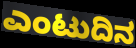
ಎಂಟುದಿನ